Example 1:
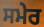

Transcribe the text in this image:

ਸਮੇਰ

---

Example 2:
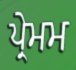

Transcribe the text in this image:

ਪ੍ਰੇਮਮ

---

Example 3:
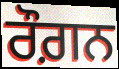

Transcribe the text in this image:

ਰੌਗ਼ਨ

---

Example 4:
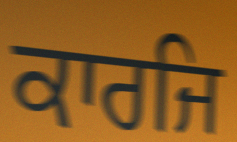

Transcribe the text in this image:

ਕਾਰਜਿ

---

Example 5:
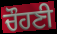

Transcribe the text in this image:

ਚੌਹਣੀ